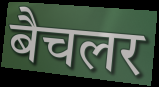
बैचलर